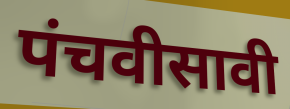
पंचवीसावी